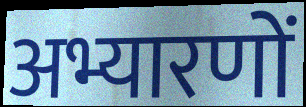
अभ्यारणों